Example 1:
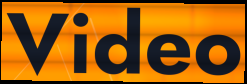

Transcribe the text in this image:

Video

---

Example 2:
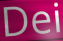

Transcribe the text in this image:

Dei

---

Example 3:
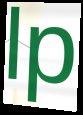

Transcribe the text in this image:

lp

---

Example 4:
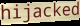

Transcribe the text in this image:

hijacked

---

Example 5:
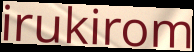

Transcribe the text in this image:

irukirom